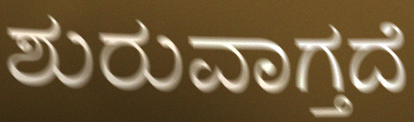
ಶುರುವಾಗ್ತದೆ